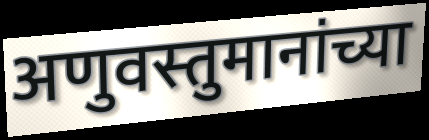
अणुवस्तुमानांच्या